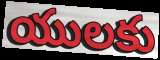
యులకు